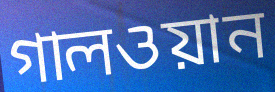
গালওয়ান